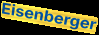
Eisenberger